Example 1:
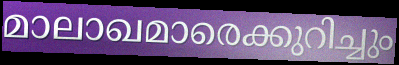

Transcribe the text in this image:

മാലാഖമാരെക്കുറിച്ചും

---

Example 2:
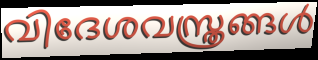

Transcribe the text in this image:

വിദേശവസ്ത്രങ്ങൾ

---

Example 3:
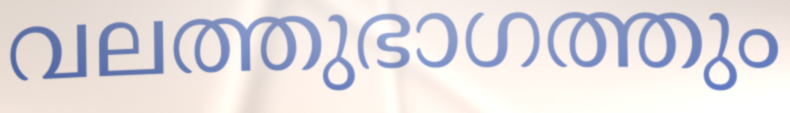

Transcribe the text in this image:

വലത്തുഭാഗത്തും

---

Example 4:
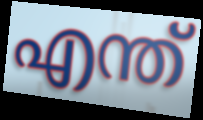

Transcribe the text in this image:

എന്ത്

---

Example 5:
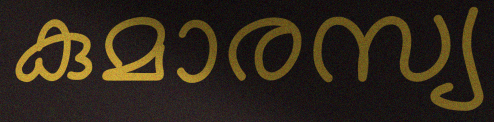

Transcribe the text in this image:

കുമാരസ്യ